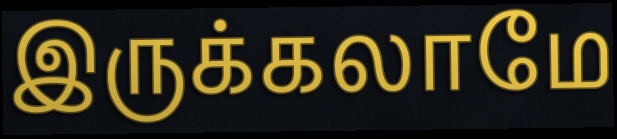
இருக்கலாமே